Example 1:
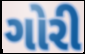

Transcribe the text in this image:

ગોરી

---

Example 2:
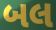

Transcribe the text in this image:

બલ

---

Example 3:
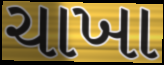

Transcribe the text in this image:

ચાખા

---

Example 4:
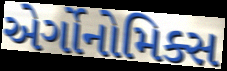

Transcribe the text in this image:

એર્ગોનોમિક્સ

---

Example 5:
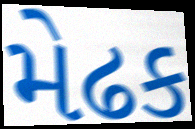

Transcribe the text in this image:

મેઢક